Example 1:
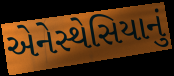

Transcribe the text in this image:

એનેસ્થેસિયાનું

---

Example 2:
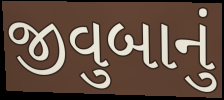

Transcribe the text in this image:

જીવુબાનું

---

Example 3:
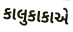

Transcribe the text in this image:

કાલુકાકાએ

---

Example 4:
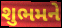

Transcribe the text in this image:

શુભમને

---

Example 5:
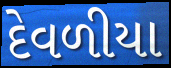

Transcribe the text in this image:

દેવળીયા